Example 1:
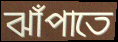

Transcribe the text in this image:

ঝাঁপাতে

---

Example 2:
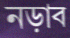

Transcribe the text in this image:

নড়াব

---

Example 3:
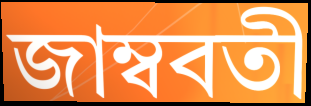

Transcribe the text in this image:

জাম্ববতী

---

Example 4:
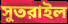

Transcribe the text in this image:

সুতরাইল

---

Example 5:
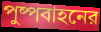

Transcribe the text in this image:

পুষ্পবাহনের